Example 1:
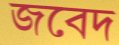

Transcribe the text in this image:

জবেদ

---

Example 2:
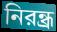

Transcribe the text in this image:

নিরন্ধ্র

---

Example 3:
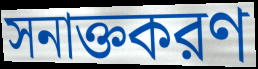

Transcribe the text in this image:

সনাক্তকরণ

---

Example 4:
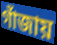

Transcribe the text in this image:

গাঁজায়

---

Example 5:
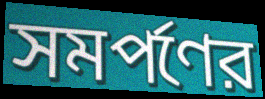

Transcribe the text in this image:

সমর্পণের